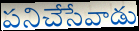
పనిచేసేవాడు